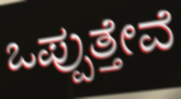
ಒಪ್ಪುತ್ತೇವೆ